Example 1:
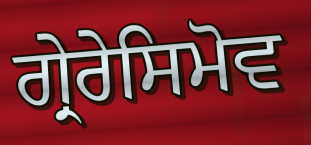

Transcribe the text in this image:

ਗ੍ਰੇਰੇਸਿਮੋਵ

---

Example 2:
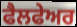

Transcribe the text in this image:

ਫੈਲਫੇਅਰ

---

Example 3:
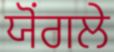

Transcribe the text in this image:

ਯੋਂਗਲੇ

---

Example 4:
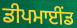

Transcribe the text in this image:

ਡੀਪਮਾਈਂਡ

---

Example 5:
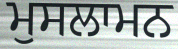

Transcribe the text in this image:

ਮੁਸਲਾਮਨ